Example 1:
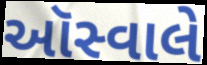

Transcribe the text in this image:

ઑસ્વાલે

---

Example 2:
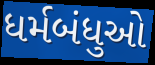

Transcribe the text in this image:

ધર્મબંધુઓ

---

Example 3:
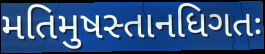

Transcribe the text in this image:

મતિમુષસ્તાનધિગતઃ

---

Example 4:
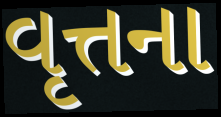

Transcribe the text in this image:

વૃત્તના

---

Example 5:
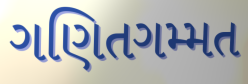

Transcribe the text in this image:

ગણિતગમ્મત